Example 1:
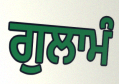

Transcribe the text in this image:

ਗੁਲਾਮੰ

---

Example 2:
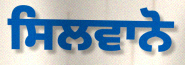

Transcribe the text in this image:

ਸਿਲਵਾਨੋ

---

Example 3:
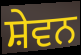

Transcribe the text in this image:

ਸ਼ੇਵਨ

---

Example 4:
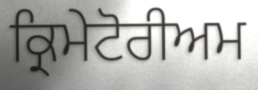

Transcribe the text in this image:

ਕ੍ਰਿਮੇਟੋਰੀਅਮ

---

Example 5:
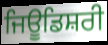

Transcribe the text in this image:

ਜਿਊਡਿਸ਼ਰੀ